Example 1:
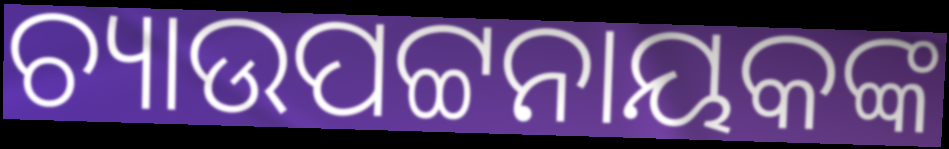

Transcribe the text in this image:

ଚ୍ୟାଉପଟ୍ଟନାୟକଙ୍କ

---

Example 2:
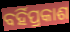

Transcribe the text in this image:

ବର୍ହିପ୍ରକାଶ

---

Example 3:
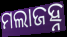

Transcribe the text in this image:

ମଲାଜହ୍ନ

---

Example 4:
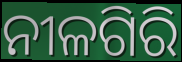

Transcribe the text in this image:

ନୀଳଗିରି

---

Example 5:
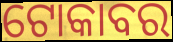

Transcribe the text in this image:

ଟୋକାବର